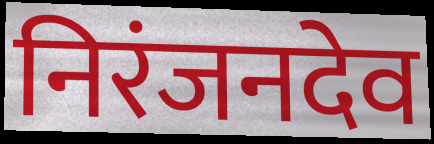
निरंजनदेव